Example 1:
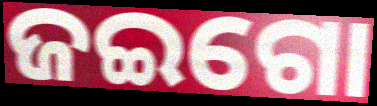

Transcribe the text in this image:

ଜଇଗୋ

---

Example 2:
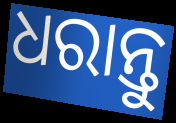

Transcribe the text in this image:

ଧରାନ୍ତୁ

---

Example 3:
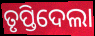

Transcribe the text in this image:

ତୃପ୍ତିଦେଲା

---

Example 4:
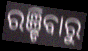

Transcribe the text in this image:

ରଞ୍ଚିବାରୁ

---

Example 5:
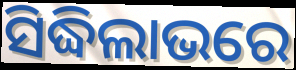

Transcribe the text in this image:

ସିଦ୍ଧିଲାଭରେ